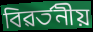
বিৱৰ্তনীয়